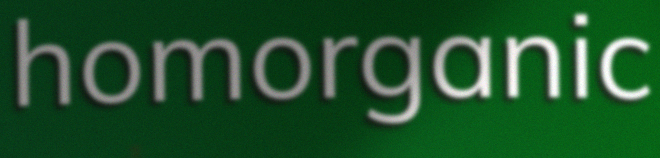
homorganic